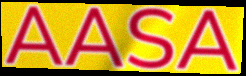
AASA